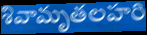
శివామృతలహరి